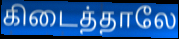
கிடைத்தாலே